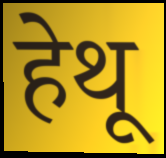
हेथू